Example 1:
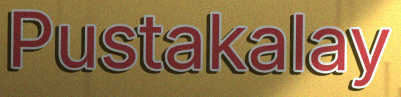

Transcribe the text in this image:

Pustakalay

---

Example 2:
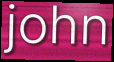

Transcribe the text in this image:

john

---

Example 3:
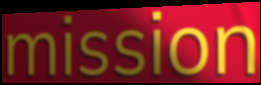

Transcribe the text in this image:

mission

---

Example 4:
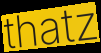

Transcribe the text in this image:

thatz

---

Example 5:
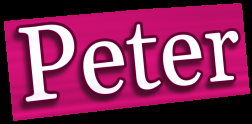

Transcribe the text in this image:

Peter